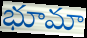
భూమా